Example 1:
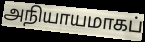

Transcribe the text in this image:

அநியாயமாகப்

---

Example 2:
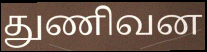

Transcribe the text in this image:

துணிவன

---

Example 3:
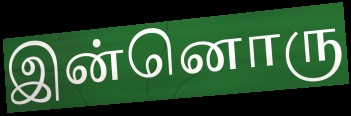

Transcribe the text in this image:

இன்னொரு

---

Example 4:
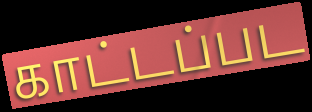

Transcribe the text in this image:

காட்டப்பட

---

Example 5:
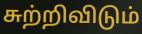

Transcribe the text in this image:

சுற்றிவிடும்